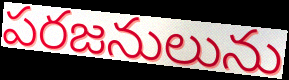
పరజనులును